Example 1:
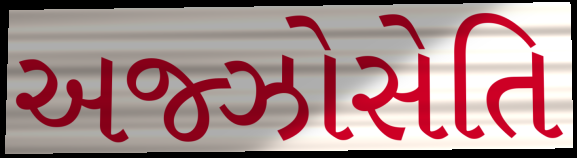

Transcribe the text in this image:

અજ્ઝોસેતિ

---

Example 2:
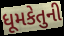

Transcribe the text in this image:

ધૂમકેતુની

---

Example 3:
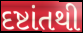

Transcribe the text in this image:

દષ્ટાંતથી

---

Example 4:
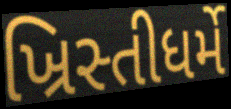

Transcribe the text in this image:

ખ્રિસ્તીધર્મે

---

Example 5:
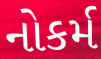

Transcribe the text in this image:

નોકર્મ